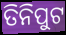
ତିନିପୁଟ